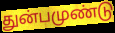
துன்பமுண்டு